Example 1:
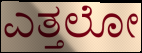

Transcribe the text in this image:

ಎತ್ತಲೋ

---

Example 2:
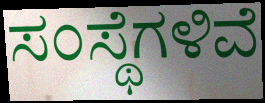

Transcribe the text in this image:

ಸಂಸ್ಥೆಗಳಿವೆ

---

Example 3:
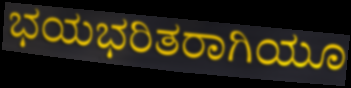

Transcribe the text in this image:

ಭಯಭರಿತರಾಗಿಯೂ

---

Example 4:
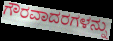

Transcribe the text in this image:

ಗೌರವಾದರಗಳನ್ನು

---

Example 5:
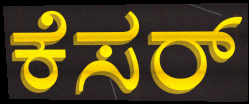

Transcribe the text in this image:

ಕೆಸರ್